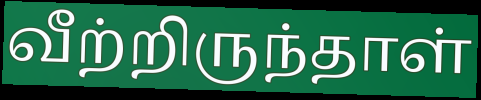
வீற்றிருந்தாள்